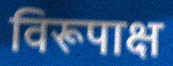
विरूपाक्ष